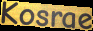
Kosrae